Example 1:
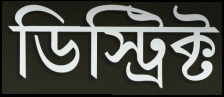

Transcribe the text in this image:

ডিস্ট্রিক্ট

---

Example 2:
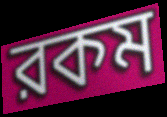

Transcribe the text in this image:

রকম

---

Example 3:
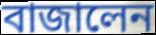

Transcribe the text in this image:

বাজালেন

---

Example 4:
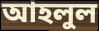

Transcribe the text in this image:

আহলুল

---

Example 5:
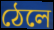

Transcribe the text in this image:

ঠেলে